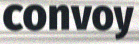
convoy